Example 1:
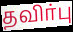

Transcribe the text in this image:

தவிர்பு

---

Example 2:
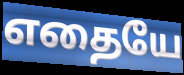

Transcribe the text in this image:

எதையே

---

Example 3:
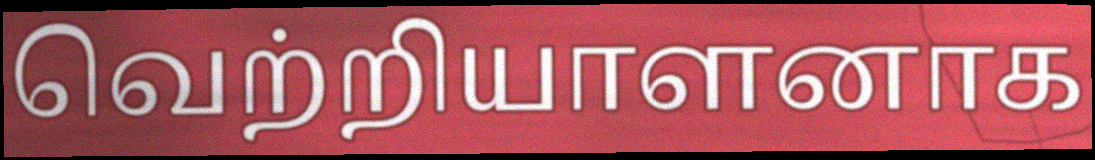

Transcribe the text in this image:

வெற்றியாளனாக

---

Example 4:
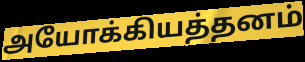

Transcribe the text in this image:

அயோக்கியத்தனம்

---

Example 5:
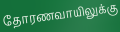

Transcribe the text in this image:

தோரணவாயிலுக்கு